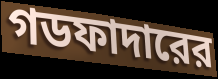
গডফাদারের